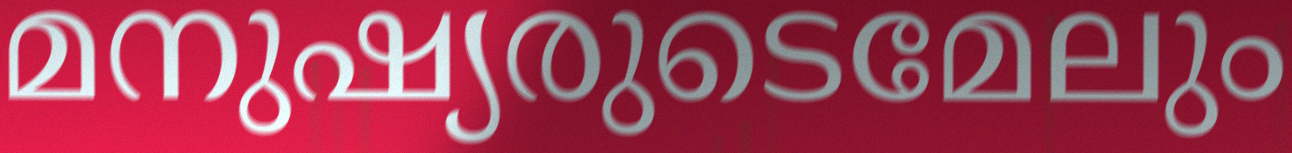
മനുഷ്യരുടെമേലും